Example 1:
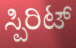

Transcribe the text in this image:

ಸ್ಪಿರಿಟ್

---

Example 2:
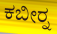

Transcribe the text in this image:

ಕಬೀರ್‍ನ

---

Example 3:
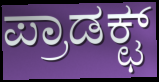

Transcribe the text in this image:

ಪ್ರಾಡಕ್ಟ್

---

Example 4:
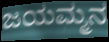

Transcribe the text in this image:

ಜಯಮ್ಮನ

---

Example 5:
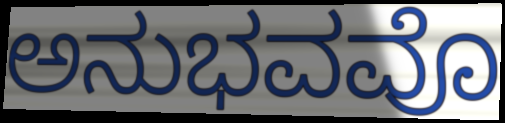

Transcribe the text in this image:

ಅನುಭವವೊ